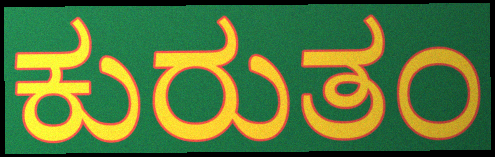
ಕುರುತಂ